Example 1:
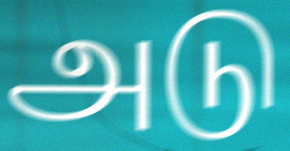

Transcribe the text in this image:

அடு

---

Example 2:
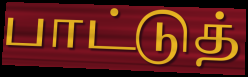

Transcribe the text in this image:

பாட்டுத்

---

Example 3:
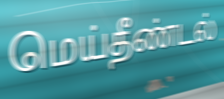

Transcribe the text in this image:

மெய்தீண்டல்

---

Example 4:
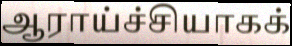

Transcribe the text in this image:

ஆராய்ச்சியாகக்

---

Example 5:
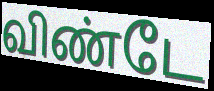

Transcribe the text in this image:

விண்டே